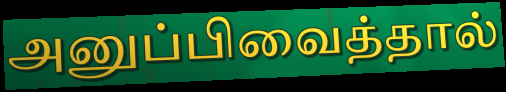
அனுப்பிவைத்தால்